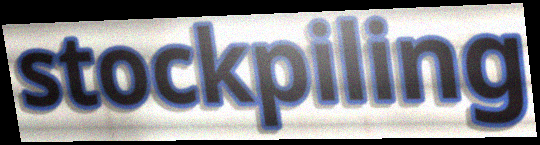
stockpiling